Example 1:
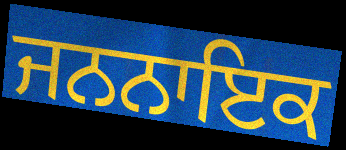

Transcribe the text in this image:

ਜਨਨਾਇਕ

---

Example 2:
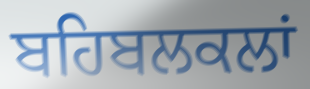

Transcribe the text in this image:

ਬਹਿਬਲਕਲਾਂ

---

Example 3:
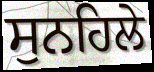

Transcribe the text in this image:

ਸੁਨਹਿਲੇ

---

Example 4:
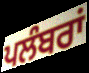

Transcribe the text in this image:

ਪਲੰਬਰਾਂ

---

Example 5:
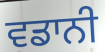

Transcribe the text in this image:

ਵਡਾਨੀ